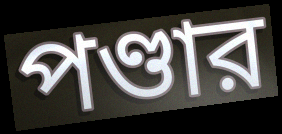
পণ্ডার